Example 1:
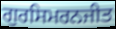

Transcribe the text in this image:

ਗੁਰਸਿਮਰਨਜੀਤ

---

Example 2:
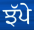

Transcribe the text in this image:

ਝੱਪੇ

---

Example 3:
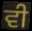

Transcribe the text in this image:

ਵੀ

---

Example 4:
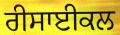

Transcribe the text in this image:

ਰੀਸਾਈਕਲ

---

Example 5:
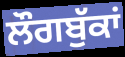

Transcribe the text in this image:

ਲੌਗਬੁੱਕਾਂ